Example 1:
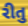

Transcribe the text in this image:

રીતુ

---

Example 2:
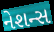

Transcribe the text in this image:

નેશન્સ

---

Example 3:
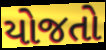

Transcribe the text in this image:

યોજતો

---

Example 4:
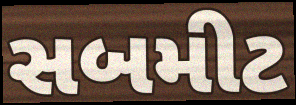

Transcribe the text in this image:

સબમીટ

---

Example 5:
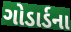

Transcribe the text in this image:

ગોડાર્ડના